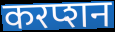
करप्शन